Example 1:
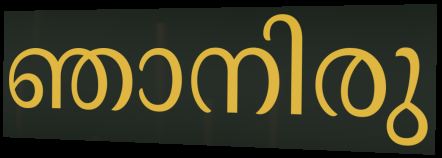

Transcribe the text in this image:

ഞാനിരു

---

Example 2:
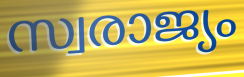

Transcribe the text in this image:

സ്വരാജ്യം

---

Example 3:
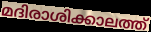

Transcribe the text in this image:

മദിരാശിക്കാലത്ത്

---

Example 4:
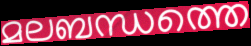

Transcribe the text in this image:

മലബന്ധത്തെ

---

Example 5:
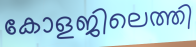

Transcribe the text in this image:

കോളജിലെത്തി